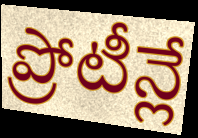
ప్రోటీన్లే